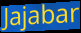
Jajabar